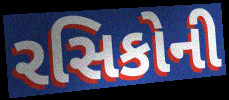
રસિકોની